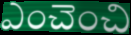
ఎంచెంచి